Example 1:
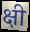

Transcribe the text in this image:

क्षी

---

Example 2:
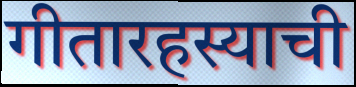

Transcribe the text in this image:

गीतारहस्याची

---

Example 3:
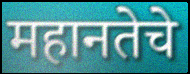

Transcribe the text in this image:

महानतेचे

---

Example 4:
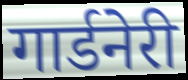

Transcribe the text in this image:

गार्डनेरी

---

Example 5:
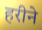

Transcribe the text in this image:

हरीने